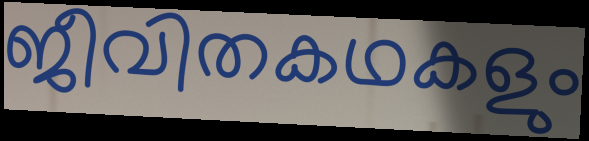
ജീവിതകഥകളും